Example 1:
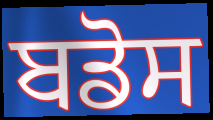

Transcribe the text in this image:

ਬਡੋਸ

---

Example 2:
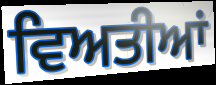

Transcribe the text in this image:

ਵਿਅਤੀਆਂ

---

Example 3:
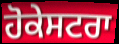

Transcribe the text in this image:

ਹੋਕੇਸਟਰਾ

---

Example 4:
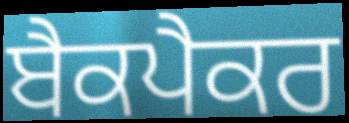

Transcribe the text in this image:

ਬੈਕਪੈਕਰ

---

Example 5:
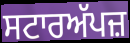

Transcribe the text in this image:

ਸਟਾਰਅੱਪਜ਼